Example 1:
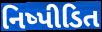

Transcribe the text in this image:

નિષ્પીડિત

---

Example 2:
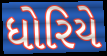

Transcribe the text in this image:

ધોરિયે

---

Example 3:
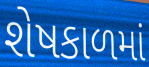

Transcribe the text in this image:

શેષકાળમાં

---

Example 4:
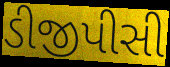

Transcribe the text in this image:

ડીજીપીસી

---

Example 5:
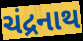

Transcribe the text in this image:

ચંદ્રનાથ